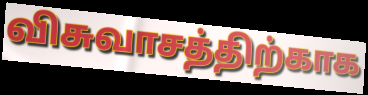
விசுவாசத்திற்காக